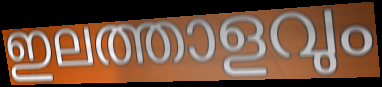
ഇലത്താളവും